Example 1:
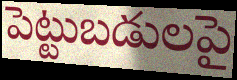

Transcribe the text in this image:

పెట్టుబడులపై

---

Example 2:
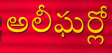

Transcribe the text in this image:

అలీఘర్లో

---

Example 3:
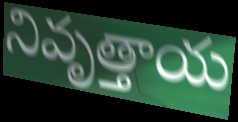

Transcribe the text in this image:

నివృత్తాయ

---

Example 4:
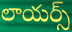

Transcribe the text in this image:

లాయర్స్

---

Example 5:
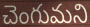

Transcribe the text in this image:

చెంగుమని